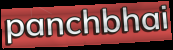
panchbhai